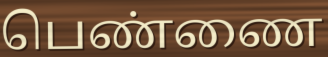
பெண்ணை